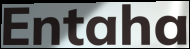
Entaha